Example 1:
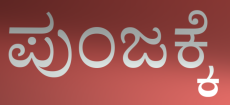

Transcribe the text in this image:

ಪುಂಜಕ್ಕೆ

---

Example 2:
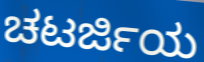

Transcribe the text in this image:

ಚಟರ್ಜಿಯ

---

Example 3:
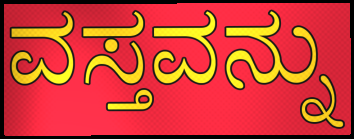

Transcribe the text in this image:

ವಸ್ತವನ್ನು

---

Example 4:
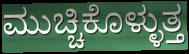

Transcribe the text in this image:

ಮುಚ್ಚಿಕೊಳ್ಳುತ್ತ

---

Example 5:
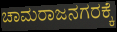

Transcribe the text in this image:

ಚಾಮರಾಜನಗರಕ್ಕೆ